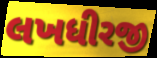
લખધીરજી